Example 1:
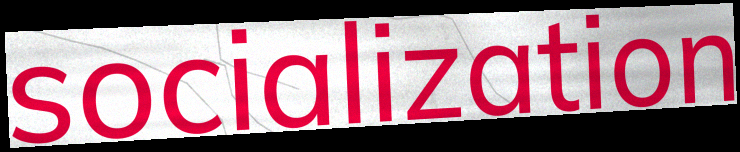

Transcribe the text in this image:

socialization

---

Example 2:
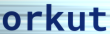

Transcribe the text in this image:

orkut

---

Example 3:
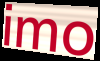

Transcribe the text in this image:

imo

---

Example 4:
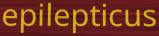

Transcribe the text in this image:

epilepticus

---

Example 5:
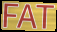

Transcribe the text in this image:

FAT